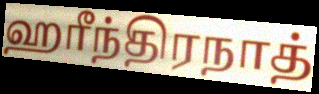
ஹரீந்திரநாத்